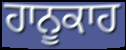
ਹਾਨੂਕਾਹ